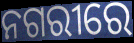
ନଗରୀରେ